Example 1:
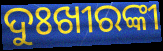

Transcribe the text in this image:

ଦୁଃଖୀରଙ୍କୀ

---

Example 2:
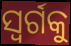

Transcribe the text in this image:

ସ୍ୱର୍ଗକୁ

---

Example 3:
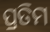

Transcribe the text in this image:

ପ୍ରତିମ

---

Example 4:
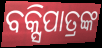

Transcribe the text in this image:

ବକ୍ସିପାତ୍ରଙ୍କ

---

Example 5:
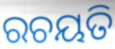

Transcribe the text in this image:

ରଚୟତି